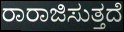
ರಾರಾಜಿಸುತ್ತದೆ